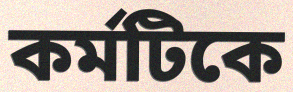
কর্মটিকে